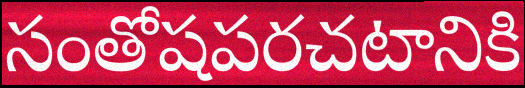
సంతోషపరచటానికి